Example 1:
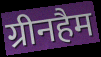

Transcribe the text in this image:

ग्रीनहैम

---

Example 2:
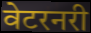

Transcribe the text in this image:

वेटरनरी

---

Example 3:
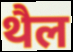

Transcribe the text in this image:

थैल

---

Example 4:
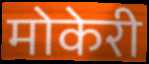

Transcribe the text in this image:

मोकेरी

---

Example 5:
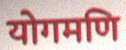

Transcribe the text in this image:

योगमणि